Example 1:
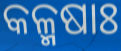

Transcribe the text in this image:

କଳ୍ମଷାଃ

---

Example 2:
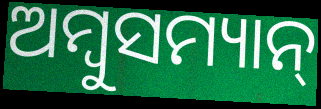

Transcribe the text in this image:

ଅମ୍ବୁସମ୍ୟାନ୍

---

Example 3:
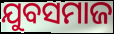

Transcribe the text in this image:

ଯୁବସମାଜ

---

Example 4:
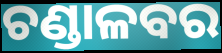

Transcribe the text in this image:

ଚଣ୍ଡାଳବର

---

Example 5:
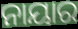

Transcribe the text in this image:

ନାୟାର